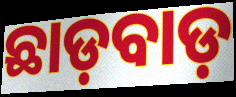
ଛାଡ଼ବାଡ଼